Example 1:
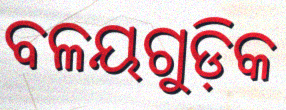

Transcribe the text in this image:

ବଳୟଗୁଡ଼ିକ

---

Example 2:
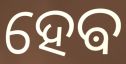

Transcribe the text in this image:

ହେଵ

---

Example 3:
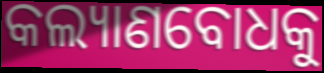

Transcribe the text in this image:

କଲ୍ୟାଣବୋଧକୁ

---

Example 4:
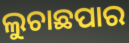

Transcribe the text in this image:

ଲୁଚାଛପାର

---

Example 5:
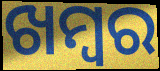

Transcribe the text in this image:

ଖମ୍ୱର